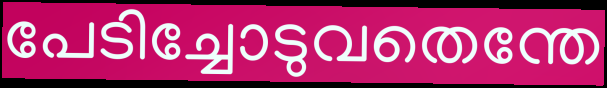
പേടിച്ചോടുവതെന്തേ